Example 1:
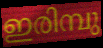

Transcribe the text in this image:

ഇരിമ്പു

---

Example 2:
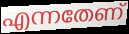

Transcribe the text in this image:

എന്നതേണ്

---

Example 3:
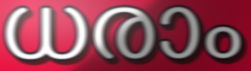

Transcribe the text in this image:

ധരാം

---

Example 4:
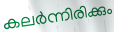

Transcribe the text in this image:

കലർന്നിരിക്കും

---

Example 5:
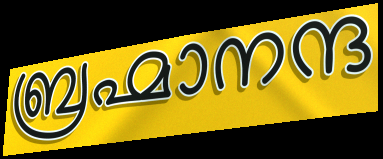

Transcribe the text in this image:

ബ്രഹ്മാനന്ദ